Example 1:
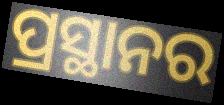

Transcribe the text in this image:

ପ୍ରସ୍ଥାନର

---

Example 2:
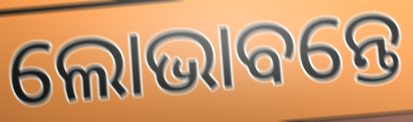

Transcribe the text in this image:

ଲୋଭାବନ୍ତେ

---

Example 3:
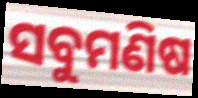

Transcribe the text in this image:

ସବୁମଣିଷ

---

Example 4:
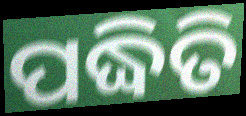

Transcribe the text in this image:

ପଦ୍ଧିତି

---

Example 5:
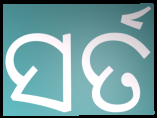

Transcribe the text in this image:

ସର୍ତ